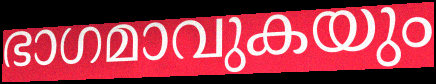
ഭാഗമാവുകയും